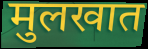
मुलखात